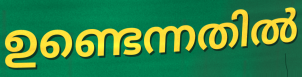
ഉണ്ടെന്നതിൽ